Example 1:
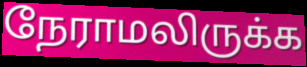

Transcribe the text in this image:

நேராமலிருக்க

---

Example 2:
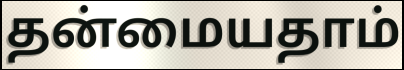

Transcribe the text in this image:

தன்மையதாம்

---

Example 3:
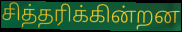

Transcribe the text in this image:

சித்தரிக்கின்றன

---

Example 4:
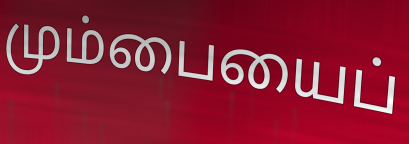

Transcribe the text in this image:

மும்பையைப்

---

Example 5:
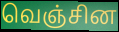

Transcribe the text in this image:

வெஞ்சின